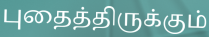
புதைத்திருக்கும்